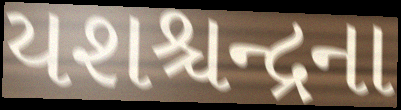
યશશ્ચન્દ્રના